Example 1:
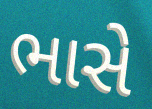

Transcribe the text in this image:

ભાસે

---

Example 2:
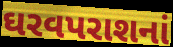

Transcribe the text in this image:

ઘરવપરાશનાં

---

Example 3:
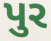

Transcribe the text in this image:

પુર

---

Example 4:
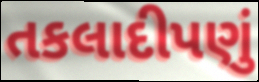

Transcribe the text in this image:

તકલાદીપણું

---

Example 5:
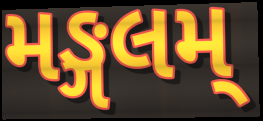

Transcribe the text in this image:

મઙ્ગલમ્